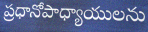
ప్రధానోపాధ్యాయులను